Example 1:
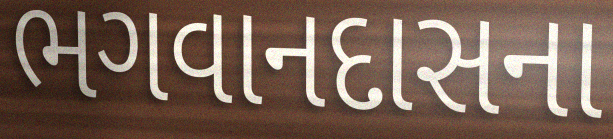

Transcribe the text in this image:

ભગવાનદાસના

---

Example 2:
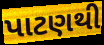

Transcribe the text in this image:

પાટણથી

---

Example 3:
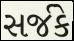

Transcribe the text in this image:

સર્જકે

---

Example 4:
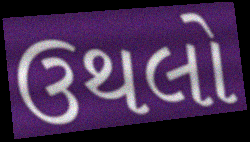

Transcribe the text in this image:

ઉથલો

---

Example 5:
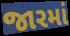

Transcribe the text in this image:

જારમાં